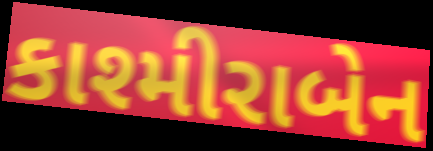
કાશ્મીરાબેન